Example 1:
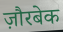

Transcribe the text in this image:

ज़ौरबेक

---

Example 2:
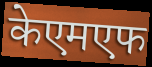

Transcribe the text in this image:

केएमएफ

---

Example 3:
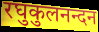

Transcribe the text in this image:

रघुकुलनन्दन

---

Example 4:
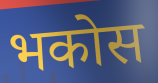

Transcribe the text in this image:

भकोस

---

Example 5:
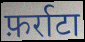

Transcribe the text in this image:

फ़र्राटा